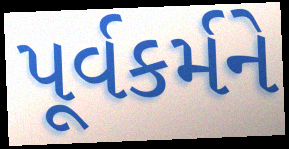
પૂર્વકર્મને